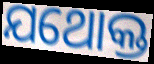
ଯଥୋକ୍ତ